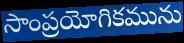
సాంప్రయోగికమును